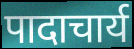
पादाचार्य